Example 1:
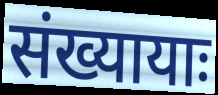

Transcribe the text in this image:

संख्यायाः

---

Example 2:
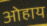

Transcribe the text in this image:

ओहाय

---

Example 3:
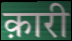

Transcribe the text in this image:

क़ारी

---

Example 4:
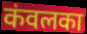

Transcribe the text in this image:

कंवलका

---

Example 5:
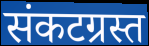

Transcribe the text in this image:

संकटग्रस्त